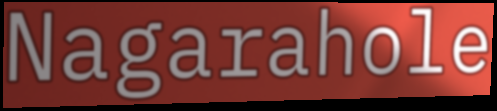
Nagarahole